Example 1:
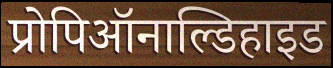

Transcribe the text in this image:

प्रोपिऑनाल्डिहाइड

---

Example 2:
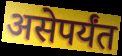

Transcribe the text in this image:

असेपर्यंत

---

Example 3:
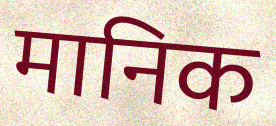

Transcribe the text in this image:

मानिक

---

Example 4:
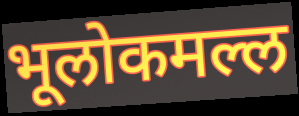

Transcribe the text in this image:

भूलोकमल्ल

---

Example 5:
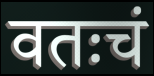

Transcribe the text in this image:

वतःचं